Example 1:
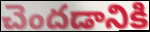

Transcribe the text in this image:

చెందడానికి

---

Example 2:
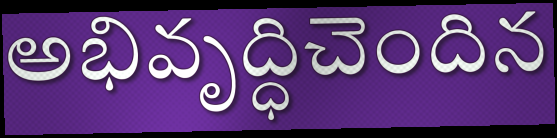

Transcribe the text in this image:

అభివృద్ధిచెందిన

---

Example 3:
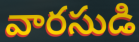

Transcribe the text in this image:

వారసుడి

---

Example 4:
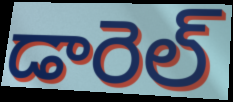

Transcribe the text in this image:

డారెల్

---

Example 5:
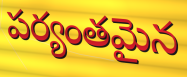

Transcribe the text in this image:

పర్యంతమైన